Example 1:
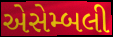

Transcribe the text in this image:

એસેમ્બલી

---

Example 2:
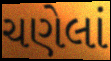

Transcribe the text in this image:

ચણેલાં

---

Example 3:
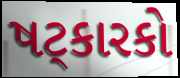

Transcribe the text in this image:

ષટ્કારકો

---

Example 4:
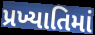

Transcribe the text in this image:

પ્રખ્યાતિમાં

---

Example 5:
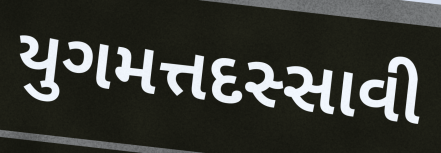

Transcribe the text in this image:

યુગમત્તદસ્સાવી